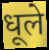
धूले